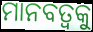
ମାନବତ୍ବକୁ